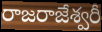
రాజరాజేశ్వరీ